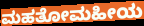
ಮಹತೋಮಹೀಯ